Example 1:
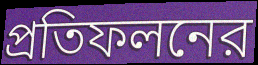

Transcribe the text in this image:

প্রতিফলনের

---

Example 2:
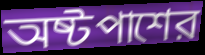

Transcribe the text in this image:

অষ্টপাশের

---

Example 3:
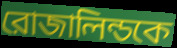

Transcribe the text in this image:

রোজালিন্ডকে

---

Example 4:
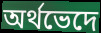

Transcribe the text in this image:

অর্থভেদে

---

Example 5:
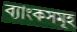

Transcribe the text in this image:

ব্যাংকসমূহ